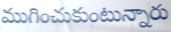
ముగించుకుంటున్నారు